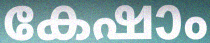
കേഷാം